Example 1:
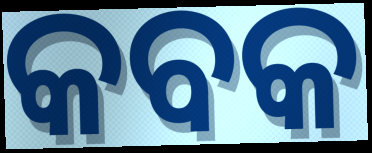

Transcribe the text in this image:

କବକ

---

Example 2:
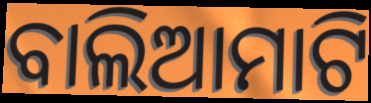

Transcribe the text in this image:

ବାଲିଆମାଟି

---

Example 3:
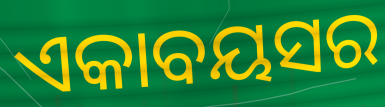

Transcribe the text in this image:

ଏକାବୟସର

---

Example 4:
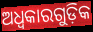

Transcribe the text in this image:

ଅଧ୍ବକାରଗୁଡ଼ିକ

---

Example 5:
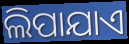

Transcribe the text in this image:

ଲିପାଯାଏ